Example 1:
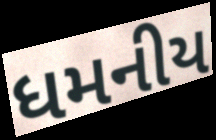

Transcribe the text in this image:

ધમનીય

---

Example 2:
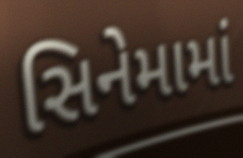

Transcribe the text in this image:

સિનેમામાં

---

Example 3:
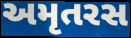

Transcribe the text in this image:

અમૃતરસ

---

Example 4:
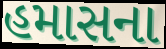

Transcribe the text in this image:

હમાસના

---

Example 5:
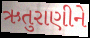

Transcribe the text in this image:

ઋતુરાણીને